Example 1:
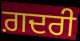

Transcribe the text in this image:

ਗ਼ਦਰੀ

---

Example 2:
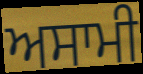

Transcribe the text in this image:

ਅਸਾਮੀ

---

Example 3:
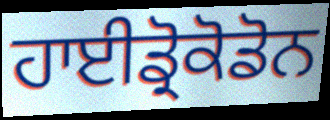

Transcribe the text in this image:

ਹਾਈਡ੍ਰੋਕੋਡੋਨ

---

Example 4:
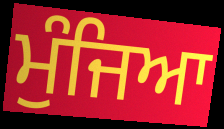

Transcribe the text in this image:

ਮੁੰਜਿਆ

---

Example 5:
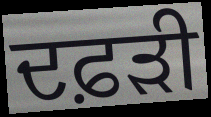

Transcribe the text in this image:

ਦਫ਼ੜੀ